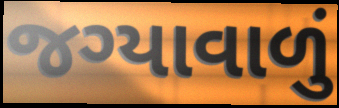
જગ્યાવાળું